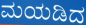
ಮಯಡಿದ